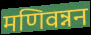
मणिवन्नन